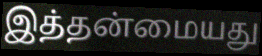
இத்தன்மையது